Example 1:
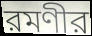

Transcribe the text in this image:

রমণীর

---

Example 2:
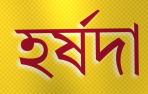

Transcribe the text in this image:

হর্ষদা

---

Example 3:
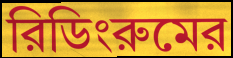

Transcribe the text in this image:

রিডিংরুমের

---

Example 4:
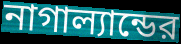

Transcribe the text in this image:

নাগাল্যান্ডের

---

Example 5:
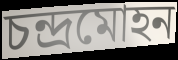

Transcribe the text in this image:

চন্দ্রমোহন